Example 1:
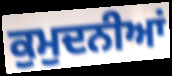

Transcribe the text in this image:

ਕੁਮੁਦਨੀਆਂ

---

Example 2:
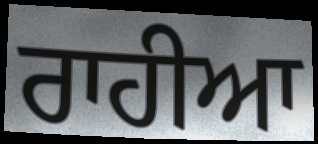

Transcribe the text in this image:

ਰਾਹੀਆ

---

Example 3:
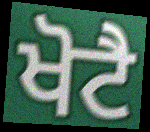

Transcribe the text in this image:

ਖੋਟੈ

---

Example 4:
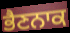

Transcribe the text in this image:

ਭੈਣਨਾਕ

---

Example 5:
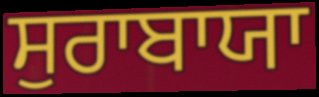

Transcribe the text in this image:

ਸੁਰਾਬਾਯਾ